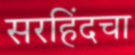
सरहिंदचा